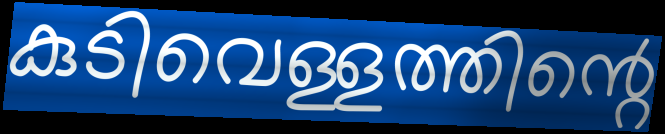
കുടിവെള്ളത്തിന്റെ